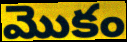
మొకం